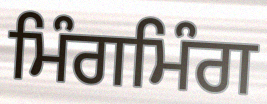
ਮਿੰਗਮਿੰਗ